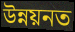
উন্নয়নত